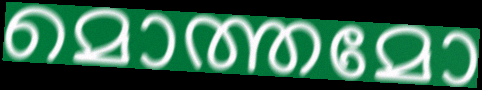
മൊത്തമോ